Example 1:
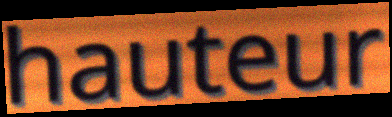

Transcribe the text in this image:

hauteur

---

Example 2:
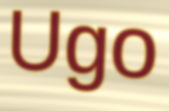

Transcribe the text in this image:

Ugo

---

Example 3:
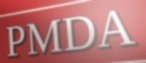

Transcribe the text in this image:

PMDA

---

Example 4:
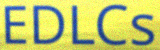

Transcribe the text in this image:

EDLCs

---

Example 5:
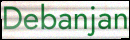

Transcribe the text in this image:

Debanjan